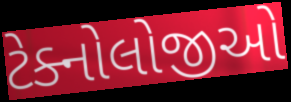
ટેક્નોલોજીઓ